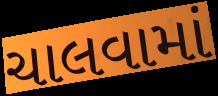
ચાલવામાં